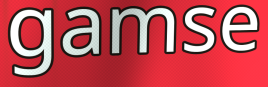
gamse